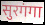
सुरगंगा